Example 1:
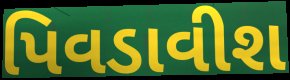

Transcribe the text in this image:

પિવડાવીશ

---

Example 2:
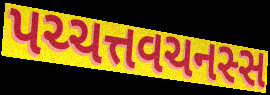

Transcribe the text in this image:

પચ્ચત્તવચનસ્સ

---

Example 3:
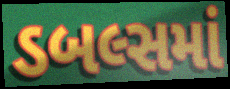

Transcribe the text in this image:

ડબલ્સમાં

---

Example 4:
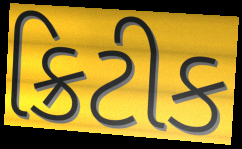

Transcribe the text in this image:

ક્રિટીક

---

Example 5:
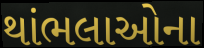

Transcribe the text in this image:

થાંભલાઓના